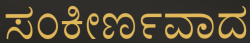
ಸಂಕೀರ್ಣವಾದ